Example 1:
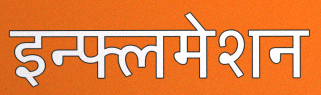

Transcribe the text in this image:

इन्फ्लमेशन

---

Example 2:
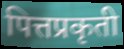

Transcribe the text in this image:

पित्तप्रकृती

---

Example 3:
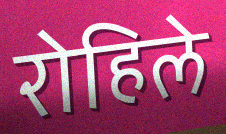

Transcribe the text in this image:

रोहिले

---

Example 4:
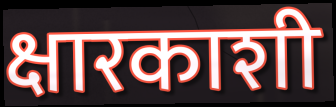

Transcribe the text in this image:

क्षारकाशी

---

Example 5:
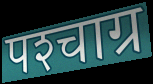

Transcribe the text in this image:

पश्चाग्र